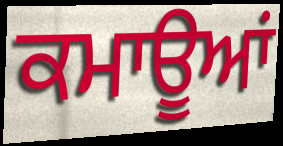
ਕਮਾਊਆਂ